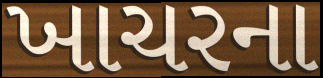
ખાચરના